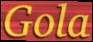
Gola